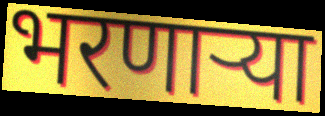
भरणाऱ्या